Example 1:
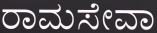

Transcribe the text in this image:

ರಾಮಸೇವಾ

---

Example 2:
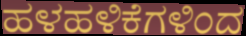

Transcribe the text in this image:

ಹಳಹಳಿಕೆಗಳಿಂದ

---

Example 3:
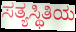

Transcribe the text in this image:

ಸತ್ಯಸ್ಥಿತಿಯ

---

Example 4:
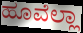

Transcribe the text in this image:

ಹೂವೆಲ್ಲಾ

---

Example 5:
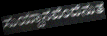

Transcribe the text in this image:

ಸುಯ್ದಾನವೆಂದೆನುತ